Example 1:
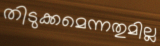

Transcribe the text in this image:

തിടുക്കമെന്നതുമില്ല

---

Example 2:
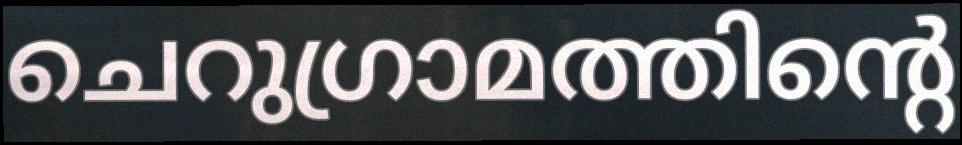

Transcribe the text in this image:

ചെറുഗ്രാമത്തിന്റെ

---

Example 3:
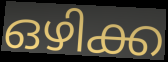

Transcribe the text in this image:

ഒഴിക്ക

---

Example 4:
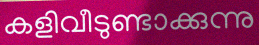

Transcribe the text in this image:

കളിവീടുണ്ടാക്കുന്നു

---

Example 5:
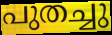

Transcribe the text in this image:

പുതച്ചു